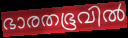
ഭാരതഭൂവിൽ